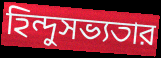
হিন্দুসভ্যতার